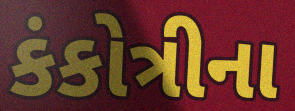
કંકોત્રીના